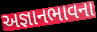
અજ્ઞાનભાવના